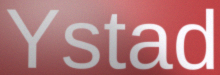
Ystad